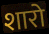
शारो